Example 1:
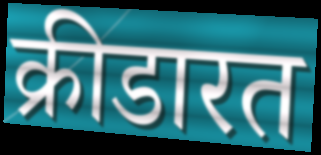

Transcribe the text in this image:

क्रीडारत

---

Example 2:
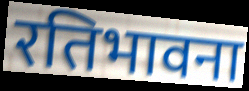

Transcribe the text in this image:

रतिभावना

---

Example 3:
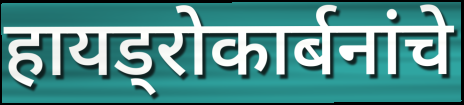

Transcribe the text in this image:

हायड्रोकार्बनांचे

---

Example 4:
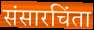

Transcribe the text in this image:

संसारचिंता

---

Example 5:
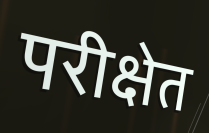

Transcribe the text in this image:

परीक्षेत